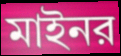
মাইনর